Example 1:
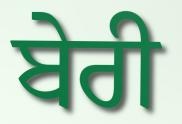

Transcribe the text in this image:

ਬੇਰੀ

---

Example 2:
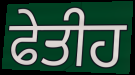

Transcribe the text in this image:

ਫੇਤੀਹ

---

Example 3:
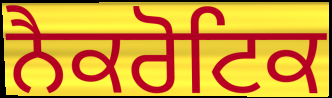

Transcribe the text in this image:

ਨੈਕਰੋਟਿਕ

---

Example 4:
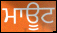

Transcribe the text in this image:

ਮਾਊਟ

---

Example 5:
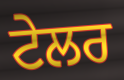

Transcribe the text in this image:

ਟੇਲਰ